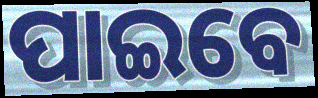
ପାଇବେ